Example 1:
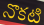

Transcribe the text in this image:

నొకటి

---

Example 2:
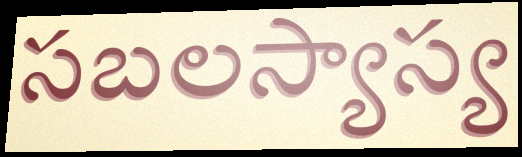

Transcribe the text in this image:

సబలస్యాస్య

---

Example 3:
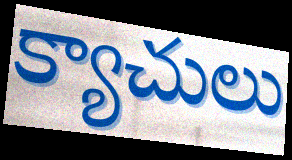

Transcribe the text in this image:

క్యాచులు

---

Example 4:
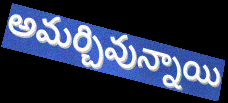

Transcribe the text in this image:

అమర్చివున్నాయి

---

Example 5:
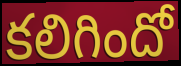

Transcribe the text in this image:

కలిగిందో